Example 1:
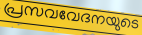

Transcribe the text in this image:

പ്രസവവേദനയുടെ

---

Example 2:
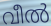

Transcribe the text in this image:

വീൽ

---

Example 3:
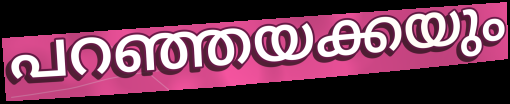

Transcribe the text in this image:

പറഞ്ഞയക്കയും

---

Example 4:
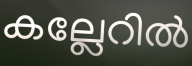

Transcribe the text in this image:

കല്ലേറിൽ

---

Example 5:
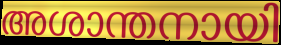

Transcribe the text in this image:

അശാന്തനായി